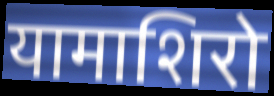
यामाशिरो